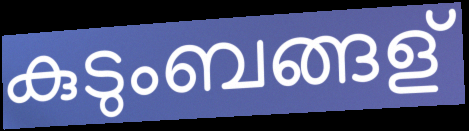
കുടുംബങ്ങള്